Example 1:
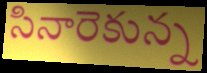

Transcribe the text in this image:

సినారెకున్న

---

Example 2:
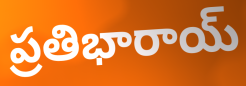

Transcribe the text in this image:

ప్రతిభారాయ్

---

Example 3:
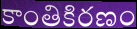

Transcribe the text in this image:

కాంతికిరణం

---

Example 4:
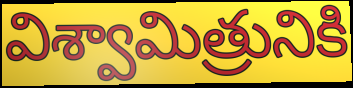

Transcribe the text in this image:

విశ్వామిత్రునికి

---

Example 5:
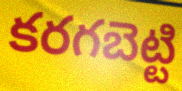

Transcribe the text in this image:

కరగబెట్టి